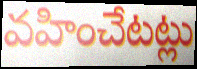
వహించేటట్లు